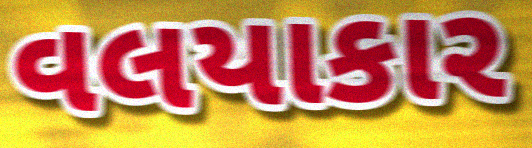
વલયાકાર